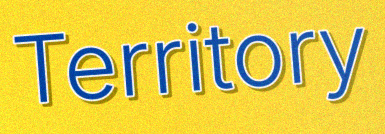
Territory